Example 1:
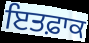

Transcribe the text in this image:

ਇਤਫ਼ਾਕ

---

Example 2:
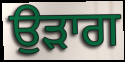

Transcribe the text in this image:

ਉੜਾਗ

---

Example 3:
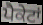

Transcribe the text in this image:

ਪੈਕੇਟਾਂ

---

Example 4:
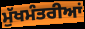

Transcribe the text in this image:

ਮੁੱਖਮੰਤਰੀਆਂ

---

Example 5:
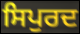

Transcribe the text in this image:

ਸਿਪੁਰਦ